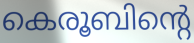
കെരൂബിന്റെ